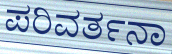
ಪರಿವರ್ತನಾ